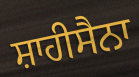
ਸ਼ਾਹੀਸੈਨਾ